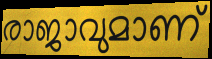
രാജാവുമാണ്